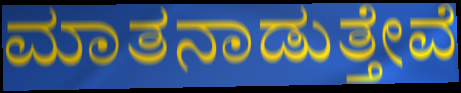
ಮಾತನಾಡುತ್ತೇವೆ